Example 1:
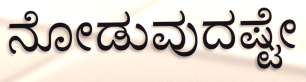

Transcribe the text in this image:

ನೋಡುವುದಷ್ಟೇ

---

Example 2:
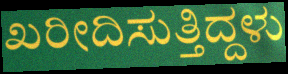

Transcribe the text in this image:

ಖರೀದಿಸುತ್ತಿದ್ದಳು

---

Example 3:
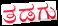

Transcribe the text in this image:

ತಡಗು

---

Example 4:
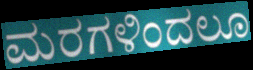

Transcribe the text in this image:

ಮರಗಳಿಂದಲೂ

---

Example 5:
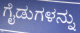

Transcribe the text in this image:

ಗೈಡುಗಳನ್ನು